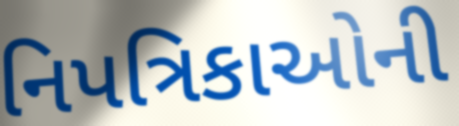
નિપત્રિકાઓની